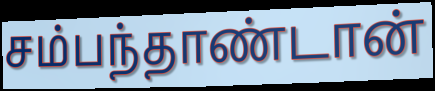
சம்பந்தாண்டான்